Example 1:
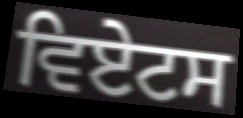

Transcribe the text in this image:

ਵਿਏਟਸ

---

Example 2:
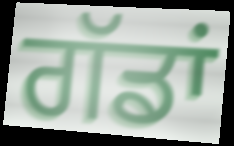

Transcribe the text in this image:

ਗੱਡਾਂ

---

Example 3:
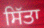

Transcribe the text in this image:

ਸਿੱਤਾ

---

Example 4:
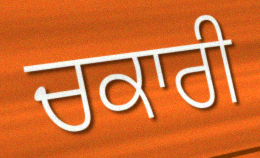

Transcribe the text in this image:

ਚਕਾਰੀ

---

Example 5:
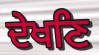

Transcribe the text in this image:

ਦੇਖਣਿ